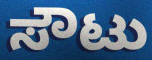
ಸೌಟು